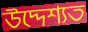
উদ্দেশ্যত